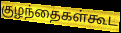
குழந்தைகள்கூட